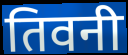
तिवनी